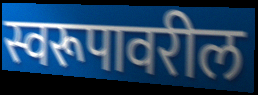
स्वरूपावरील